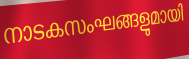
നാടകസംഘങ്ങളുമായി